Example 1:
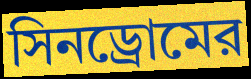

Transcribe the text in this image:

সিনড্রোমের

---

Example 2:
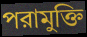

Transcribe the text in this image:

পরামুক্তি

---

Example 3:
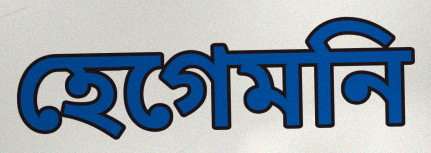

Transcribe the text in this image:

হেগেমনি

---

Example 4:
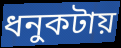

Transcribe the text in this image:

ধনুকটায়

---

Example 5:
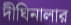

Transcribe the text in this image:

দীঘিনালার